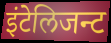
इंटेलिजन्ट